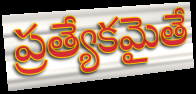
ప్రత్యేకమైతే